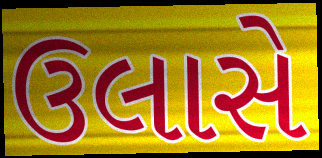
ઉલાસે